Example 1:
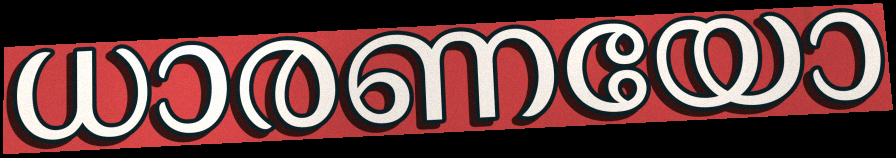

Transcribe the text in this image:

ധാരണയോ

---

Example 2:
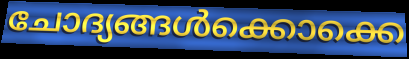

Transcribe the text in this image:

ചോദ്യങ്ങൾക്കൊക്കെ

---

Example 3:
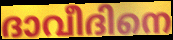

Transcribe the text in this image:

ദാവീദിനെ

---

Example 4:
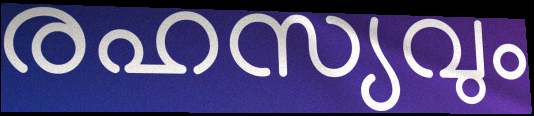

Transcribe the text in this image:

രഹസ്യവും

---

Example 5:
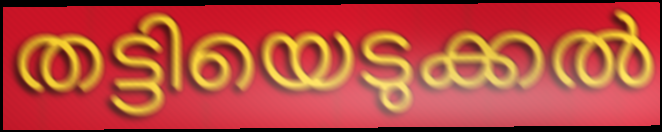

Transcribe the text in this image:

തട്ടിയെടുക്കൽ